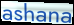
ashana